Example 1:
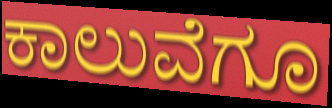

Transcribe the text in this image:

ಕಾಲುವೆಗೂ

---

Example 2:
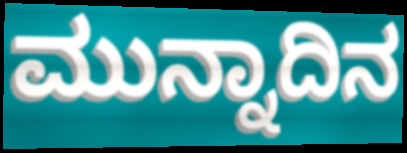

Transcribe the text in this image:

ಮುನ್ನಾದಿನ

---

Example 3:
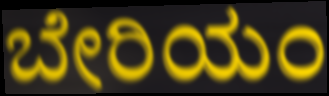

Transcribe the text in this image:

ಬೇರಿಯಂ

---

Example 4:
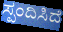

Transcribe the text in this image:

ಸ್ಪಂದಿಸಿದೆ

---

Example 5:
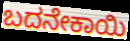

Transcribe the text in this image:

ಬದನೇಕಾಯಿ